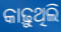
କାଢ଼ୁଥିଲି